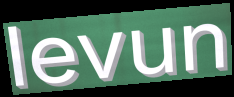
levun